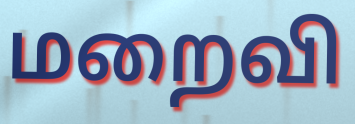
மறைவி